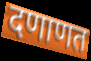
दणाणत